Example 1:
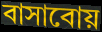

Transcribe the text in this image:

বাসাবোয়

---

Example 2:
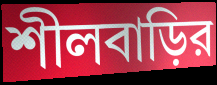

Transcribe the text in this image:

শীলবাড়ির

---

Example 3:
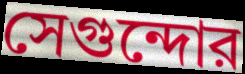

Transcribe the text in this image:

সেগুন্দোর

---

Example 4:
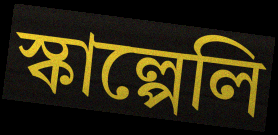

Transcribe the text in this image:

স্কাল্পেলি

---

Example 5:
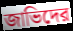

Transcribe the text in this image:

জাভিদের